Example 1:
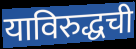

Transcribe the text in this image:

याविरुद्धची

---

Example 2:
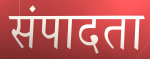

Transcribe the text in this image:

संपादता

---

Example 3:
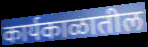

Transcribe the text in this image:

कार्यकाळातील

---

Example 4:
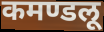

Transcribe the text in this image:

कमण्डलू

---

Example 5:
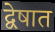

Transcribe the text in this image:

द्वेषात